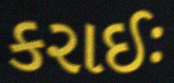
કરાઈઃ